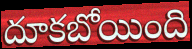
దూకబోయింది